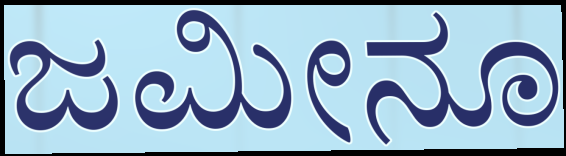
ಜಮೀನೂ